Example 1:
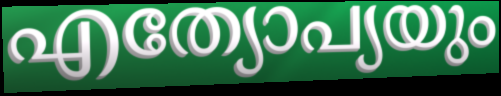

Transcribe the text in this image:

എത്യോപ്യയും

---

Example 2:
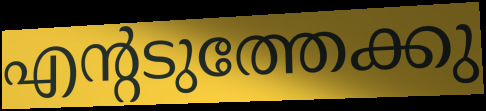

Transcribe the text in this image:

എന്റടുത്തേക്കു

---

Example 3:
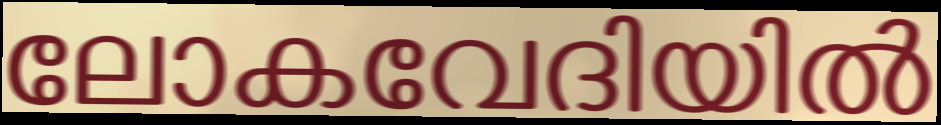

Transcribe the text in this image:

ലോകവേദിയിൽ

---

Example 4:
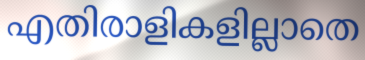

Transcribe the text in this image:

എതിരാളികളില്ലാതെ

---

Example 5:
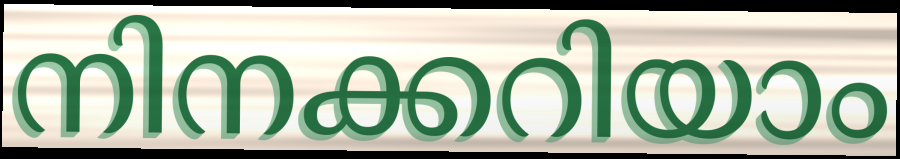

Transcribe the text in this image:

നിനക്കറിയാം